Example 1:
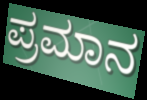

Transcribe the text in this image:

ಪ್ರಮಾನ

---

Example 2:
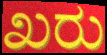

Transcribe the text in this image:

ಖರು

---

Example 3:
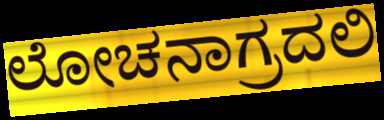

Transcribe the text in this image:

ಲೋಚನಾಗ್ರದಲಿ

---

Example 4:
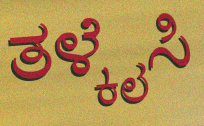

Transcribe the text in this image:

ತಳ್ಕೈಸಿ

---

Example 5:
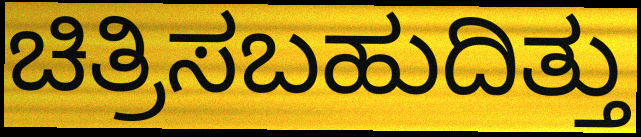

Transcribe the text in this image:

ಚಿತ್ರಿಸಬಹುದಿತ್ತು